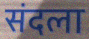
संदला